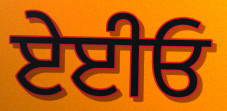
ਏਈਓ